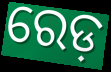
ରେଡ଼